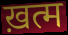
ख़त्म